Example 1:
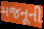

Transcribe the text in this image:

મજનૂની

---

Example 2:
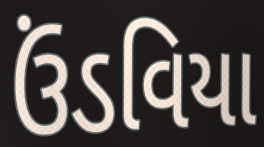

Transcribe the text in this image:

ઉંડવિયા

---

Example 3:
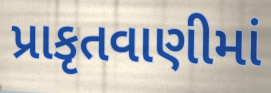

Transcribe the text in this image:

પ્રાકૃતવાણીમાં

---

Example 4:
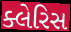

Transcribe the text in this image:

ક્લેરિસ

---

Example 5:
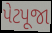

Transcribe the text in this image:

પેટપૂજા